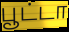
பூட்டா